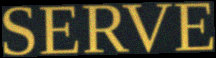
SERVE